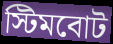
স্টিমবোট